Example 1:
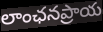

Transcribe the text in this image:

లాంఛనప్రాయ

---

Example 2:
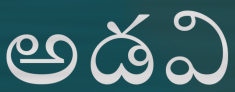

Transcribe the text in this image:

అడవి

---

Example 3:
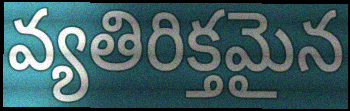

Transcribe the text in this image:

వ్యతిరిక్తమైన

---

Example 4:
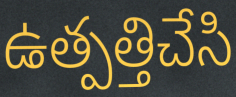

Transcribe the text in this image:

ఉత్పత్తిచేసి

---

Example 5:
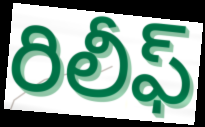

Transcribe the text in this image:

రిలీఫ్